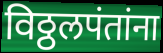
विठ्ठलपंतांना